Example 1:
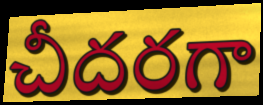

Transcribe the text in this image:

చీదరగా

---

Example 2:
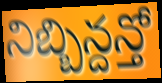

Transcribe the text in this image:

నిబ్బిన్దన్తో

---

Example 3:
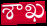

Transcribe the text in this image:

శాఖ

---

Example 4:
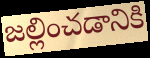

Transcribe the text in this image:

జల్లించడానికి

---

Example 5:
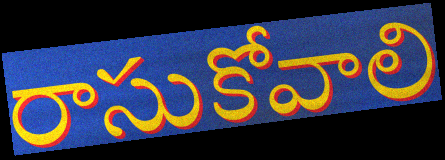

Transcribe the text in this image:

రాసుకోవాలి